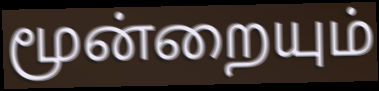
மூன்றையும்